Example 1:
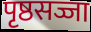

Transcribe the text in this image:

पृष्ठसज्जा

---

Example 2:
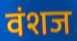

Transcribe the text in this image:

वंशज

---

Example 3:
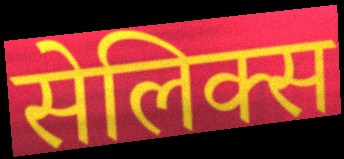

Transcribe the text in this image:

सेलिक्स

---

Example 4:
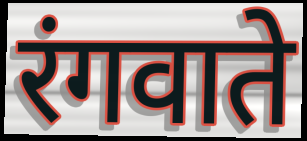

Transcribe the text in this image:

रंगवाते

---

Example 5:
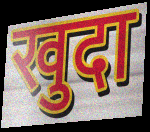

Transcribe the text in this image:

खुदा